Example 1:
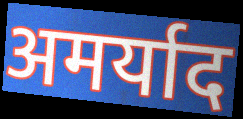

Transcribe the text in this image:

अमर्याद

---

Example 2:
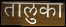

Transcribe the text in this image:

तालुका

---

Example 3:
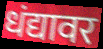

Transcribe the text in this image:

धंद्यावर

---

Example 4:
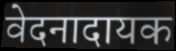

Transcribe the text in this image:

वेदनादायक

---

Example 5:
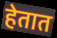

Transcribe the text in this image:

हेतात